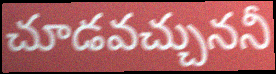
చూడవచ్చుననీ